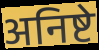
अनिष्टे